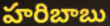
హరిబాబు